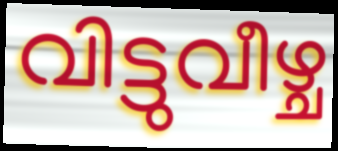
വിട്ടുവീഴ്ച